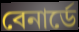
বেনাৰ্ডে